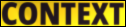
CONTEXT